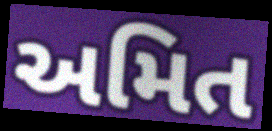
અમિત